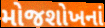
મોજશોખનાં